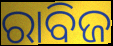
ରାବିଜ